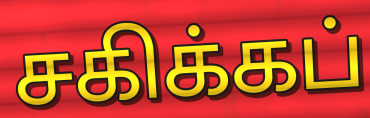
சகிக்கப்